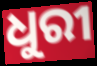
ଧୁରୀ